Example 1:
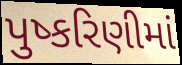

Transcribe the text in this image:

પુષ્કરિણીમાં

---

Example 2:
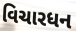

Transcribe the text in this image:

વિચારધન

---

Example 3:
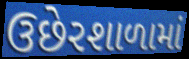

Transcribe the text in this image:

ઉછેરશાળામાં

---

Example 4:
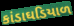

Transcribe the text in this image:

કાંડાઘડિયાળ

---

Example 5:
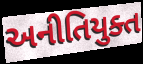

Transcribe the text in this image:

અનીતિયુક્ત